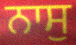
ਨਾਸੁ